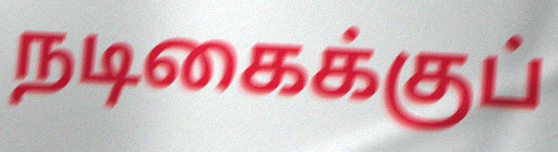
நடிகைக்குப்